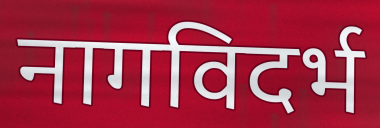
नागविदर्भ